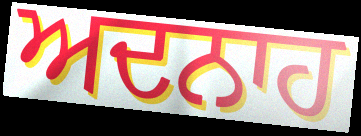
ਅਦਨਾਹ